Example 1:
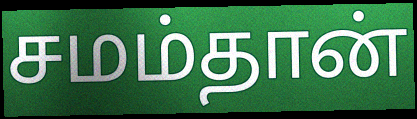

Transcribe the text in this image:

சமம்தான்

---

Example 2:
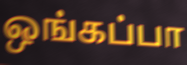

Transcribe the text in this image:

ஒங்கப்பா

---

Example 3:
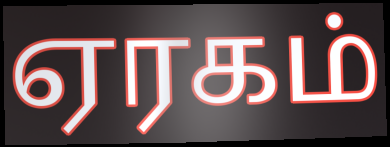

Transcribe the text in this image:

ஏரகம்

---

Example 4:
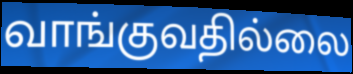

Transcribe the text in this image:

வாங்குவதில்லை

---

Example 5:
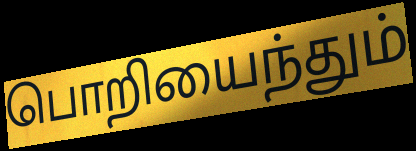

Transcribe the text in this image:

பொறியைந்தும்